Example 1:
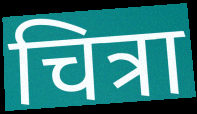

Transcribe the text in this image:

चित्रा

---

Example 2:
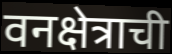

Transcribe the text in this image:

वनक्षेत्राची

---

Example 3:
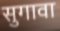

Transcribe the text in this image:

सुगावा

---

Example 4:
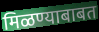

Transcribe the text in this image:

मिळण्याबाबत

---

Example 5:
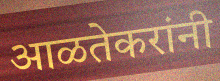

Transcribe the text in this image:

आळतेकरांनी